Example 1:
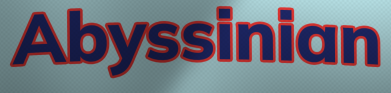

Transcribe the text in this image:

Abyssinian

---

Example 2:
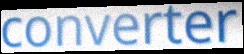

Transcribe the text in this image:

converter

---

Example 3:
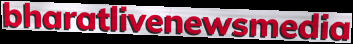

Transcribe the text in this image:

bharatlivenewsmedia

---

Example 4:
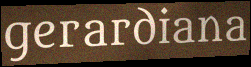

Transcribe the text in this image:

gerardiana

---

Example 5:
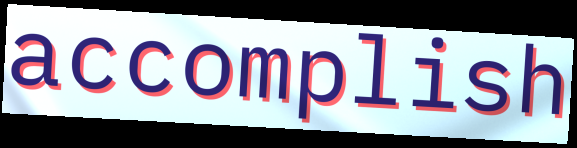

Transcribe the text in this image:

accomplish